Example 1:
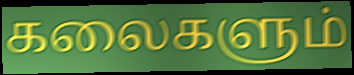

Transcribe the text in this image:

கலைகளும்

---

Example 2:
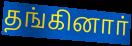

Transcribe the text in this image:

தங்கினார்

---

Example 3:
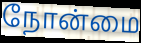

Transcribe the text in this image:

நோன்மை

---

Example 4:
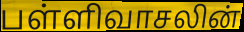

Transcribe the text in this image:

பள்ளிவாசலின்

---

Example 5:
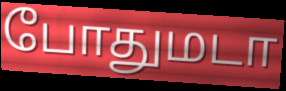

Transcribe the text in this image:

போதுமடா